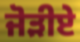
ਜੋੜੀਏ